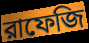
রাফেজি